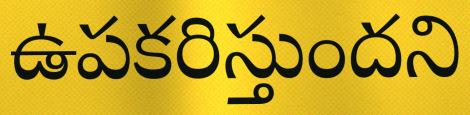
ఉపకరిస్తుందని